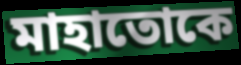
মাহাতোকে